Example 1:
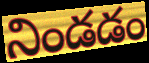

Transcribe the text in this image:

నిండడం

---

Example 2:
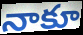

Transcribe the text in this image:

నాకూ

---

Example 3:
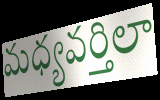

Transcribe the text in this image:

మధ్యవర్తిలా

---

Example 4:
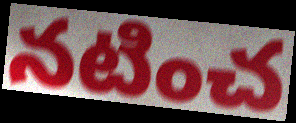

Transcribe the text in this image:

నటించ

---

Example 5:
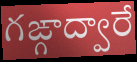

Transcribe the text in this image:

గఙ్గాద్వారే